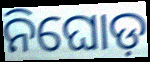
ନିଘୋଡ଼